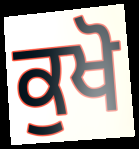
ਕੁਖੋ